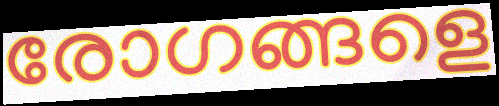
രോഗങ്ങളെ